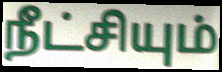
நீட்சியும்